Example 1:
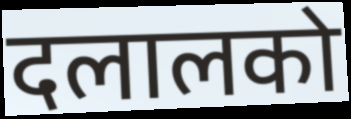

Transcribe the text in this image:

दलालको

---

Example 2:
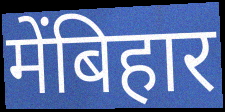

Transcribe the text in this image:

मेंबिहार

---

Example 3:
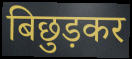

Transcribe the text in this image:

बिछुड़कर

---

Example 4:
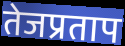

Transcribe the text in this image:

तेजप्रताप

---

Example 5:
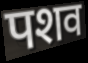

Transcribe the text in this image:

पशव